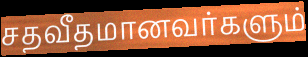
சதவீதமானவர்களும்